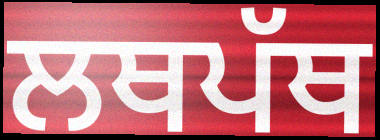
ਲਥਪੱਥ